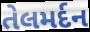
તેલમર્દન